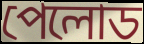
পেলোড